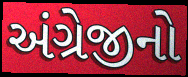
અંગ્રેજીનો